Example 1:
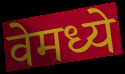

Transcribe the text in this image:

वेमध्ये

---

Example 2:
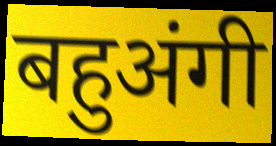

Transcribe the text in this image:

बहुअंगी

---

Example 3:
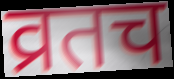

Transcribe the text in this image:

व्रतच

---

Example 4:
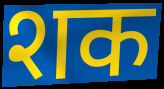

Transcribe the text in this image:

शक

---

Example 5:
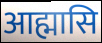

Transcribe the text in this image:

आह्मासि